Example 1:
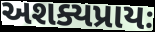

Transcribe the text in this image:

અશક્યપ્રાયઃ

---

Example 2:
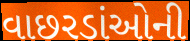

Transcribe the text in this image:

વાછરડાંઓની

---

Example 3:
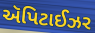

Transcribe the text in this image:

ઍપિટાઈઝર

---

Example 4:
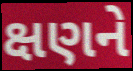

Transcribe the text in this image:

ક્ષણને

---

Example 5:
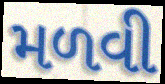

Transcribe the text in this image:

મળવી